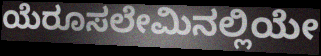
ಯೆರೂಸಲೇಮಿನಲ್ಲಿಯೇ